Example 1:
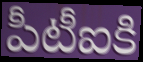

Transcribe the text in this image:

పీటీఐకి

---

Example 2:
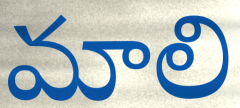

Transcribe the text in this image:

మాలి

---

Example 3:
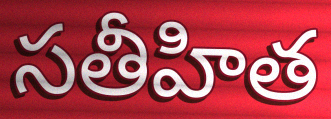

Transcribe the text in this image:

సతీహిత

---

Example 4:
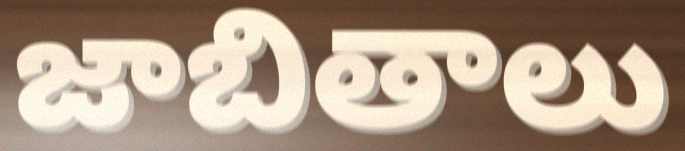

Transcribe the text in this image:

జాబితాలు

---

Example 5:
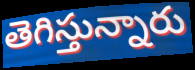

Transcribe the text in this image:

తెగిస్తున్నారు